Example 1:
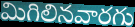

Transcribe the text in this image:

మిగిలినవారగు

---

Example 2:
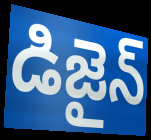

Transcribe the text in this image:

డిజైన్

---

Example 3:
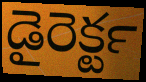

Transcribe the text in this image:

డైరెక్టర్‍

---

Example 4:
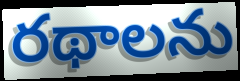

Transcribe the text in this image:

రథాలను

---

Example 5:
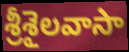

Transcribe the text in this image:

శ్రీశైలవాసా